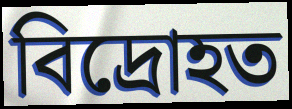
বিদ্ৰোহত